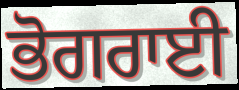
ਭੋਗਰਾਈ